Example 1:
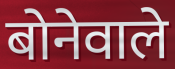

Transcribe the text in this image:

बोनेवाले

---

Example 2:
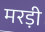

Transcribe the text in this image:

मरड़ी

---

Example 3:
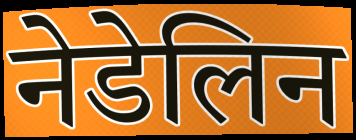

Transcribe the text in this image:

नेडेलिन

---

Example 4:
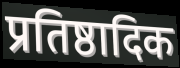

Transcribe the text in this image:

प्रतिष्ठादिक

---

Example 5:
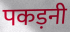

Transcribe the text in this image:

पकड़नी